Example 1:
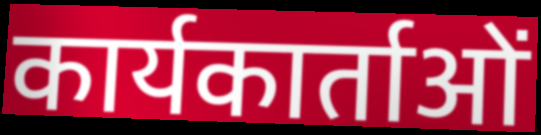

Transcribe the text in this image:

कार्यकार्ताओं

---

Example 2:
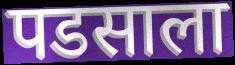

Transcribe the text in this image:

पडसाला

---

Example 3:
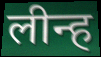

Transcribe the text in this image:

लीन्ह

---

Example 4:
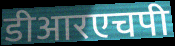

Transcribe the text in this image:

डीआरएचपी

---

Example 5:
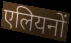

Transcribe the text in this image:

एलियनों